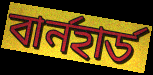
বার্নহার্ড